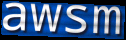
awsm